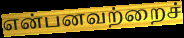
என்பனவற்றைச்